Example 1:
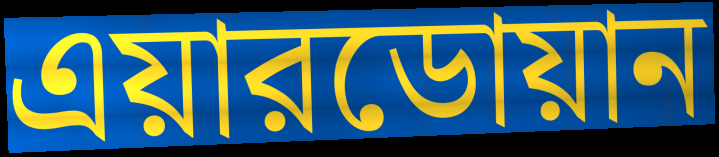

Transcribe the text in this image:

এয়ারডোয়ান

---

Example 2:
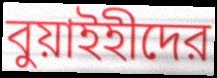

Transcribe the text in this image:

বুয়াইহীদের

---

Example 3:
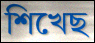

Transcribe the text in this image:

শিখেছ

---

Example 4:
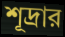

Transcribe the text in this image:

শূদ্রার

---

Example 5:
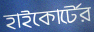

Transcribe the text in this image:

হাইকোর্টের